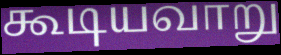
கூடியவாறு